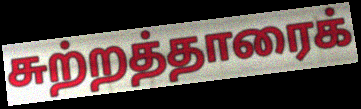
சுற்றத்தாரைக்